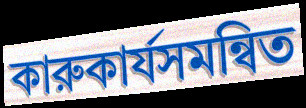
কারুকার্যসমন্বিত